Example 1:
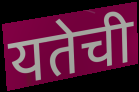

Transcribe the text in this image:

यतेची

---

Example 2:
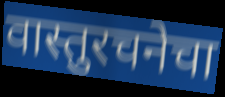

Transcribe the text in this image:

वास्तुरचनेचा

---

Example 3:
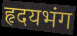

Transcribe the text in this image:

हृदयभंग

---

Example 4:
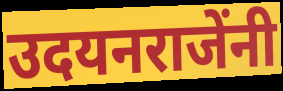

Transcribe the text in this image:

उदयनराजेंनी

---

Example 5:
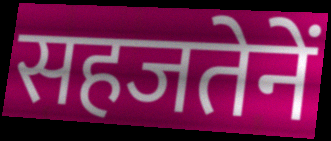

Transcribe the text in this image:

सहजतेनें